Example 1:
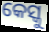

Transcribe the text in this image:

କେସ୍କୁ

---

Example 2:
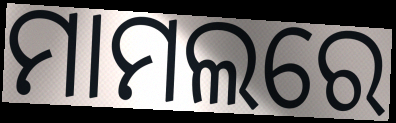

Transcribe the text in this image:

ମାମଲରେ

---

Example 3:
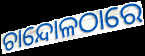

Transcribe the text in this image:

ଚାନ୍ଦୋଳଠାରେ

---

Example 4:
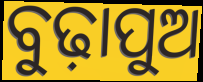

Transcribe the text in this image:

ବୁଢ଼ାପୁଅ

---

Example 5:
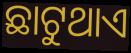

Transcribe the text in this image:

ଛାଟୁଥାଏ